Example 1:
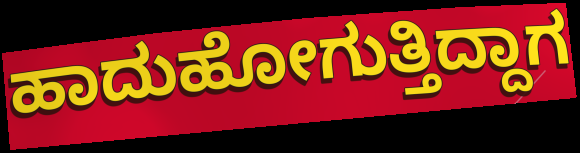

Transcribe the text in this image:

ಹಾದುಹೋಗುತ್ತಿದ್ದಾಗ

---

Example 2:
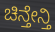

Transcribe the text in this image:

ಚಿನ್ತೇನ್ತಿ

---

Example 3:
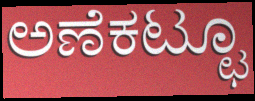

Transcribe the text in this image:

ಅಣೆಕಟ್ಟೂ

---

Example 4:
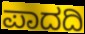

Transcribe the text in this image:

ಪಾದದಿ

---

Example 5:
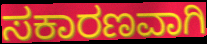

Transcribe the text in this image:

ಸಕಾರಣವಾಗಿ